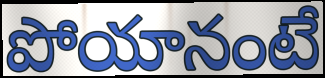
పోయానంటే